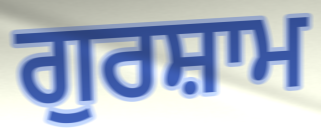
ਗੁਰਸ਼ਾਮ